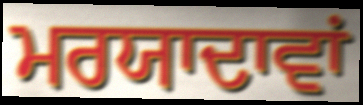
ਮਰਯਾਦਾਵਾਂ